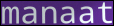
manaat